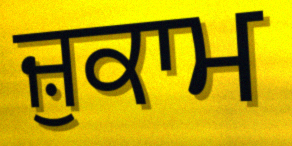
ਜ਼ੁਕਾਮ